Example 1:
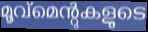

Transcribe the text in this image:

മൂവ്മെന്റുകളുടെ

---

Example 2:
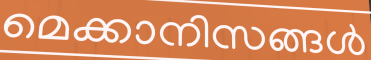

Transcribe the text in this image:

മെക്കാനിസങ്ങൾ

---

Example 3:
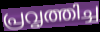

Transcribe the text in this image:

പ്രവൃത്തിച്ച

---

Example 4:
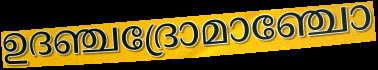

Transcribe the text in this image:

ഉദഞ്ചദ്രോമാഞ്ചോ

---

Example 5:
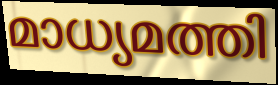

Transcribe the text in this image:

മാധ്യമത്തി